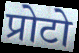
प्रोटो